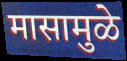
मासामुळे